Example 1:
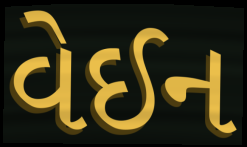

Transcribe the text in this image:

વેઈન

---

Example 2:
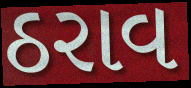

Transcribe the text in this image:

ઠરાવ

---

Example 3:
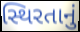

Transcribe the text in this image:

સ્થિરતાનું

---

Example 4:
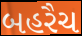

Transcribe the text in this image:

બહરૈચ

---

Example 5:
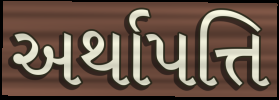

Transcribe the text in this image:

અર્થાપત્તિ